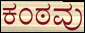
ಕಂಠವು